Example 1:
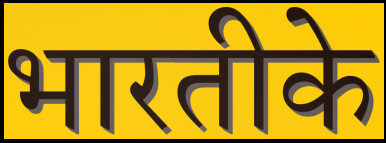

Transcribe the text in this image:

भारतीके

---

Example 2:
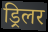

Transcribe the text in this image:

ड्रिलर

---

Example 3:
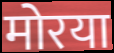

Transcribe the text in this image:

मोरया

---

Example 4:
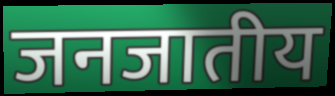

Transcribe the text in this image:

जनजातीय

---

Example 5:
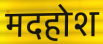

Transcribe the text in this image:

मदहोश